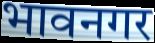
भावनगर